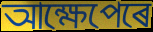
আক্ষেপেৰে